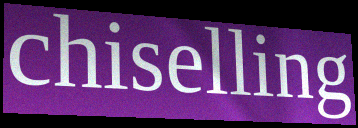
chiselling